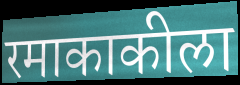
रमाकाकीला